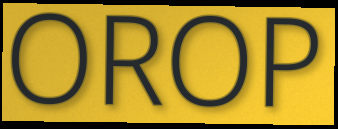
OROP